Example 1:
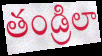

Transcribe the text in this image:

తండ్రిలా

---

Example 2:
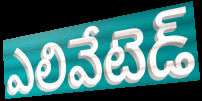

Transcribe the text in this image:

ఎలివేటెడ్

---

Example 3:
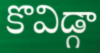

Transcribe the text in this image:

కొవిడ్గా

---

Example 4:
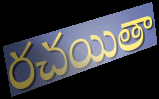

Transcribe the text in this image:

రచయితా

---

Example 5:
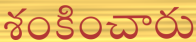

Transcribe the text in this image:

శంకించారు